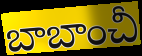
బాబాంచీ